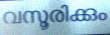
വസൂരിക്കും